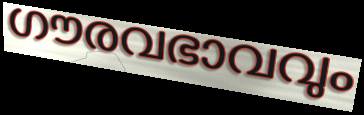
ഗൗരവഭാവവും